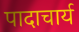
पादाचार्य